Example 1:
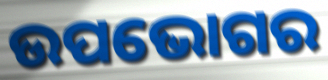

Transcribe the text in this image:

ଉପଭୋଗର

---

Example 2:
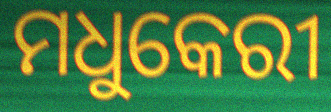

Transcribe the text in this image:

ମଧୁକେରୀ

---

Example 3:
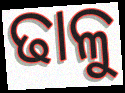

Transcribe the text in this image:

ଢାଳୁ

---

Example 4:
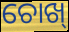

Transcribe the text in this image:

ଚୋଖ୍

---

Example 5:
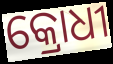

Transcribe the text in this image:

କ୍ରୋଧୀ